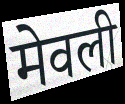
मेवली